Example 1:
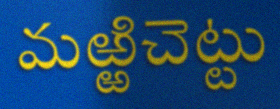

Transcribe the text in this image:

మఱ్ఱిచెట్టు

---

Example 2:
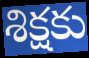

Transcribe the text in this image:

శిక్షకు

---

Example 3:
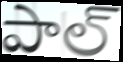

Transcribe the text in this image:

పాల్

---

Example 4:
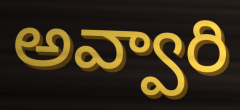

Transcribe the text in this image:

అవ్వారి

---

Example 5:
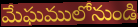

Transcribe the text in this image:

మేఘములోనుండి